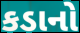
કડાનો